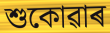
শুকোৱাৰ